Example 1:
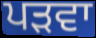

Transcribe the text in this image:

ਪੜਵਾ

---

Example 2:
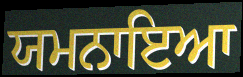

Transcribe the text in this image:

ਯਮਨਾਇਆ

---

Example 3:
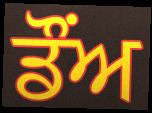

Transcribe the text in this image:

ਡੌਂਅ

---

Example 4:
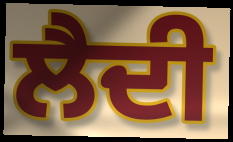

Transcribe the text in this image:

ਲੈਦੀ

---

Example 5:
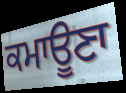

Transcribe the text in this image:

ਕਮਾਊਣਾ